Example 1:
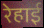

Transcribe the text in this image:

रेहाई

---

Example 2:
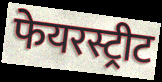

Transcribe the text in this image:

फेयरस्ट्रीट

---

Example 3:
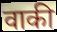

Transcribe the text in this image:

वाकी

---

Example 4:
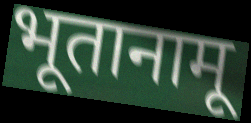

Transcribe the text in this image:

भूतानामू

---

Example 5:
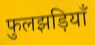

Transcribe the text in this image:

फुलझड़ियाँ